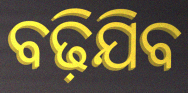
ବଢ଼ିଯିବ